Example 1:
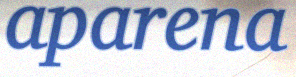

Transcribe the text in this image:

aparena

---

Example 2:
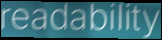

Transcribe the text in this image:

readability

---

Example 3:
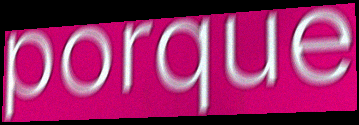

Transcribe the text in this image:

porque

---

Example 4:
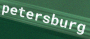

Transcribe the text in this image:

petersburg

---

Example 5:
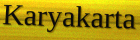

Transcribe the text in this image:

Karyakarta